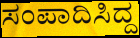
ಸಂಪಾದಿಸಿದ್ದ